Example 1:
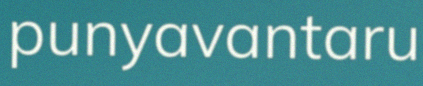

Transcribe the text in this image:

punyavantaru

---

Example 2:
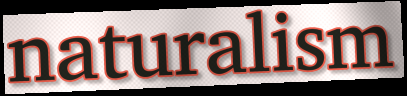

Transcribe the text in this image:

naturalism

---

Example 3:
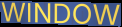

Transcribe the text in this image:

WINDOW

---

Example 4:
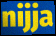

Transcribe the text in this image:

nijja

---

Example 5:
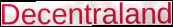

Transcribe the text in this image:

Decentraland